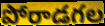
పోరాడగల